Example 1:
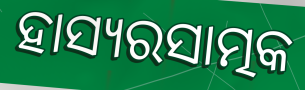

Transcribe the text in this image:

ହାସ୍ୟରସାତ୍ମକ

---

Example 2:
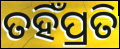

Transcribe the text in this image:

ତହିଁପ୍ରତି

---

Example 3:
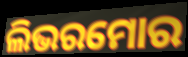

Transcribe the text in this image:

ଲିଭରମୋର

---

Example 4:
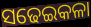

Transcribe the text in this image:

ସଢେଇକଳା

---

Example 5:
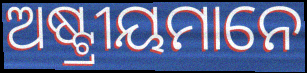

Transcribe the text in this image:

ଅଷ୍ଟ୍ରୀୟମାନେ